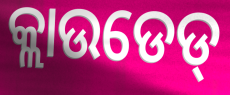
କ୍ଲାଉଡେଡ୍